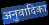
अनुवादिका